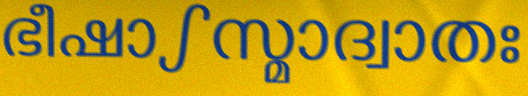
ഭീഷാഽസ്മാദ്വാതഃ